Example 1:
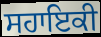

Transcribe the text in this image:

ਸਹਾਇਕੀ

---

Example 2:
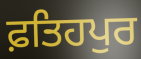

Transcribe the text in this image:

ਫ਼ਤਿਹਪੁਰ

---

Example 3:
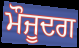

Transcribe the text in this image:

ਮੌਜੂਦਗ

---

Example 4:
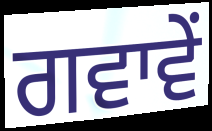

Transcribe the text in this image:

ਗਵਾਵੇਂ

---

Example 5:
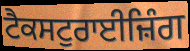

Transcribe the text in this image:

ਟੈਕਸਟੁਰਾਈਜ਼ਿੰਗ